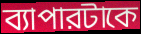
ব্যাপারটাকে